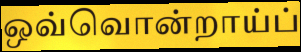
ஒவ்வொன்றாய்ப்